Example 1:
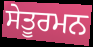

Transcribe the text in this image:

ਸੇਤੂਰਮਨ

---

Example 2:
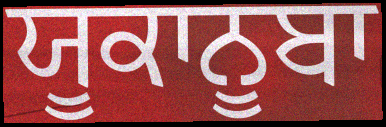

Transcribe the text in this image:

ਯੂਕਾਨੂਬਾ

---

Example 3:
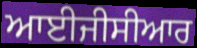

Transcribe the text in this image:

ਆਈਜੀਸੀਆਰ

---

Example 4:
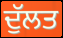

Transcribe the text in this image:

ਦੁੱਲਤ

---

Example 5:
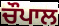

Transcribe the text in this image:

ਚੌਪਾਲ